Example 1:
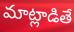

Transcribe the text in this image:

మాట్లాడితే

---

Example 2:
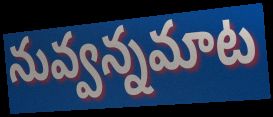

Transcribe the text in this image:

నువ్వన్నమాట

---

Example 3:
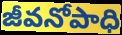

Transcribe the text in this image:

జీవనోపాధి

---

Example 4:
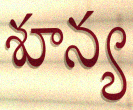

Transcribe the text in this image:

శూన్య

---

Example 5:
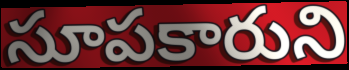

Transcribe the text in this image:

సూపకారుని